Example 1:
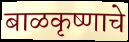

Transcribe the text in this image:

बाळकृष्णाचे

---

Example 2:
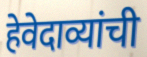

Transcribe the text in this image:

हेवेदाव्यांची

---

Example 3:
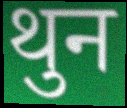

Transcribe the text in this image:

थुन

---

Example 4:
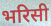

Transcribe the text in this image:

भरिसी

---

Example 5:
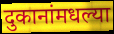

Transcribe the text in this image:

दुकानांमधल्या